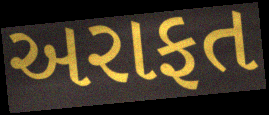
અરાફત